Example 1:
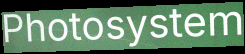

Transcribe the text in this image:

Photosystem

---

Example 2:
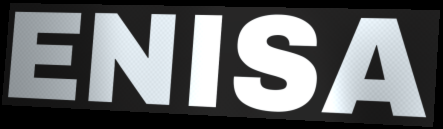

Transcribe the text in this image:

ENISA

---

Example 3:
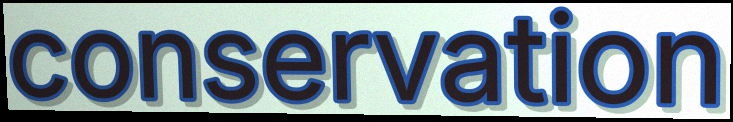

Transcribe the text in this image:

conservation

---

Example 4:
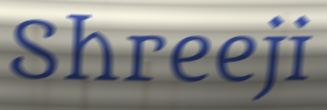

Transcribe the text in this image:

Shreeji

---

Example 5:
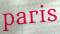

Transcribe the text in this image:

paris